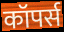
कॉपर्स